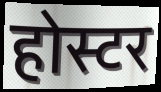
होस्टर